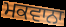
ਮਕਵਾਨਾ